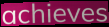
achieves